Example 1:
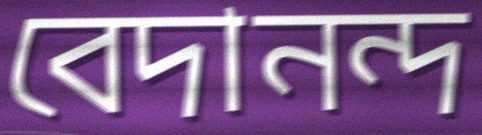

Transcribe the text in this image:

বেদানন্দ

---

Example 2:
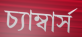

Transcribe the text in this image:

চ্যাম্বার্স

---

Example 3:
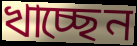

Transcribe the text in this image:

খাচ্ছেন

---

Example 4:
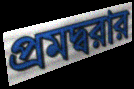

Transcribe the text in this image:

প্রমদ্বরার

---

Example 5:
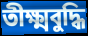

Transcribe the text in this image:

তীক্ষ্মবুদ্ধি